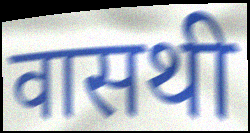
वासथी